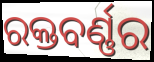
ରକ୍ତବର୍ଣ୍ଣର